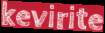
kevirite